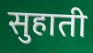
सुहाती